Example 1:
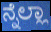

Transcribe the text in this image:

ನ್ನೆಲ್ಲಾ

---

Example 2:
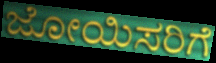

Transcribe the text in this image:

ಜೋಯಿಸರಿಗೆ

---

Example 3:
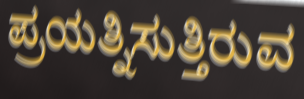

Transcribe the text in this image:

ಪ್ರಯತ್ನಿಸುತ್ತಿರುವ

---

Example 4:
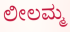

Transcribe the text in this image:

ಲೀಲಮ್ಮ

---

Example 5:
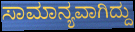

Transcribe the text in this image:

ಸಾಮಾನ್ಯವಾಗಿದ್ದು